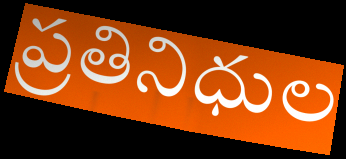
ప్రతినిధుల